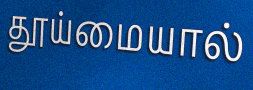
தூய்மையால்